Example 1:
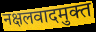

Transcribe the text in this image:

नक्षलवादमुक्त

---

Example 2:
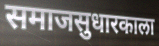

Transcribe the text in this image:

समाजसुधारकाला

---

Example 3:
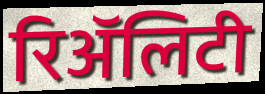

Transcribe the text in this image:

रिॲलिटी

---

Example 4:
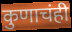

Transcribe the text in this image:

कुणाचंही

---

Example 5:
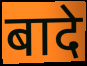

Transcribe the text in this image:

बादे